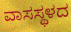
ವಾಸಸ್ಥಳದ